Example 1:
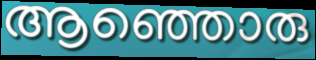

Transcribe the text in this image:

ആഞ്ഞൊരു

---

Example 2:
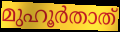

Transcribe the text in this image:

മുഹൂർതാത്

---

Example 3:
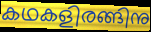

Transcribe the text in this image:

കഥകളിരങ്ങിനു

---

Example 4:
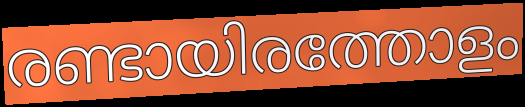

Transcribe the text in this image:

രണ്ടായിരത്തോളം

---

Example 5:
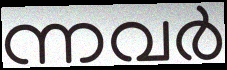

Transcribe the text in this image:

ന്നവർ